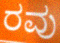
ರವು